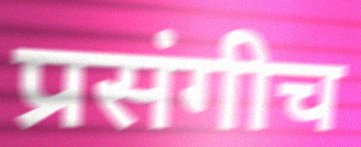
प्रसंगीच